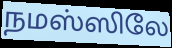
நமஸ்ஸிலே